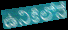
ఉనికిలోనే